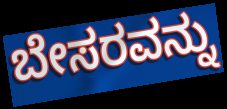
ಬೇಸರವನ್ನು